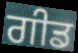
ਗੀਡ